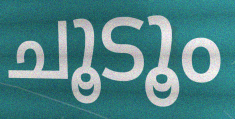
ചൂടൂം